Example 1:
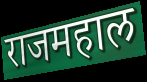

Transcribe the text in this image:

राजमहाल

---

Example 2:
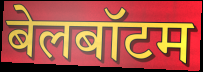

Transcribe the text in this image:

बेलबॉटम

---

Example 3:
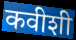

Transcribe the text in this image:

कवीशी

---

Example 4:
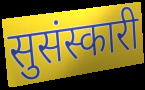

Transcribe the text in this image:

सुसंस्कारी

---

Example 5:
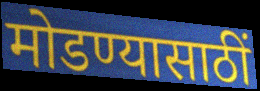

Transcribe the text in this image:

मोडण्यासाठीं